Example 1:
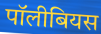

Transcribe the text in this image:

पॉलीबियस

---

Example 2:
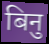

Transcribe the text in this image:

बिनु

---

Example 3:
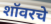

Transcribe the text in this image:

शॉवरचे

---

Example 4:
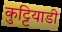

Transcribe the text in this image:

कुट्टियाडी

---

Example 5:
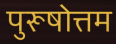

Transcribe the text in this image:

पुरूषोत्तम